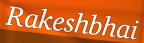
Rakeshbhai